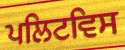
ਪਲਿਟਵਿਸ